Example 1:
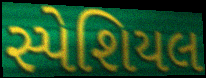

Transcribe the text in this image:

સ્પેશિયલ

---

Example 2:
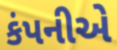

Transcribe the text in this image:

કંપનીએ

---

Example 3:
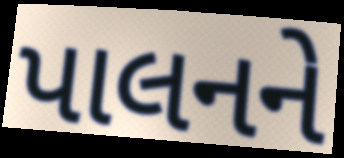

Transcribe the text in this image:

પાલનને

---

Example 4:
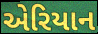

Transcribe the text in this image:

એરિયાન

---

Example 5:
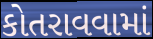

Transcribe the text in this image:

કોતરાવવામાં